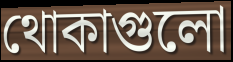
থোকাগুলো